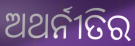
ଅଥର୍ନୀତିର